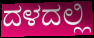
ದಳದಲ್ಲಿ